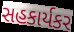
સહકાર્યકર